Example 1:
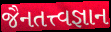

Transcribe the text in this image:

જૈનતત્ત્વજ્ઞાન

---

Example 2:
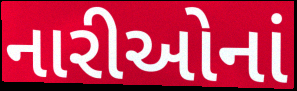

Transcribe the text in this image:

નારીઓનાં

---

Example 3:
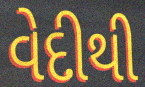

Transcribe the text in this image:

વેદીથી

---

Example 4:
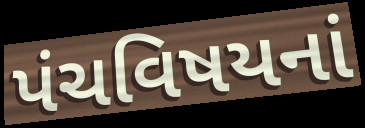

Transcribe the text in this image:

પંચવિષયનાં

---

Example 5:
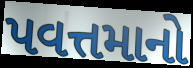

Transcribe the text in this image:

પવત્તમાનો